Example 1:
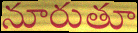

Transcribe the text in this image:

నూరుతూ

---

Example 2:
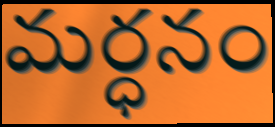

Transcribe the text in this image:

మర్ధనం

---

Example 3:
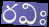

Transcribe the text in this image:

రవిః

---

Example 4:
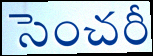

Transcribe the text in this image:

సెంచరీ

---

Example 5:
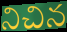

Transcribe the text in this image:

నిచిన